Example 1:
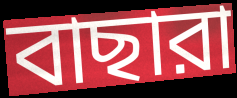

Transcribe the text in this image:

বাছারা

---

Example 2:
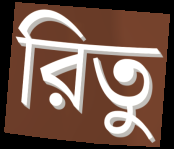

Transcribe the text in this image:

রিতু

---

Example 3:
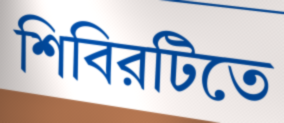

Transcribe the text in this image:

শিবিরটিতে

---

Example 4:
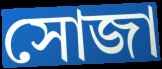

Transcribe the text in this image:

সোজা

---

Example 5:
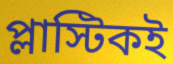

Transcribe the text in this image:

প্লাস্টিকই